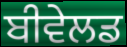
ਬੀਵੇਲਡ